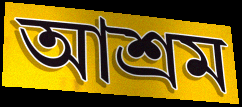
আশ্ৰম